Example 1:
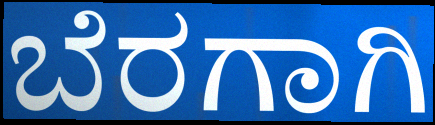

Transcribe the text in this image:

ಬೆರಗಾಗಿ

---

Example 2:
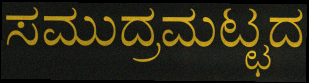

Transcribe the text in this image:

ಸಮುದ್ರಮಟ್ಟದ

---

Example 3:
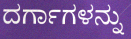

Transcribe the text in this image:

ದರ್ಗಾಗಳನ್ನು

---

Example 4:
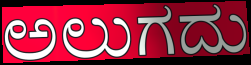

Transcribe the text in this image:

ಅಲುಗದು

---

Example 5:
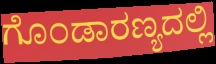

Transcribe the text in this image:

ಗೊಂಡಾರಣ್ಯದಲ್ಲಿ